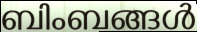
ബിംബങ്ങൾ